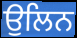
ਉਲਿਨ